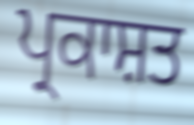
ਪ੍ਰਕਾਸ਼ਤ